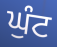
ਘੁੰਟ